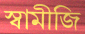
স্বামীজি